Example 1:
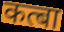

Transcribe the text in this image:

कत्बा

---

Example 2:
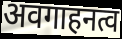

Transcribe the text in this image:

अवगाहनत्व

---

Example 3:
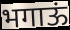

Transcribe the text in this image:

भगाऊं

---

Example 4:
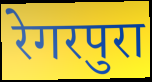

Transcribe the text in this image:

रेगरपुरा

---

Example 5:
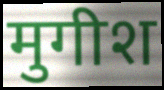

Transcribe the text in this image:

मुगीश